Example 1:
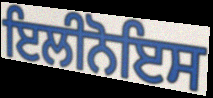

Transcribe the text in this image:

ਇਲੀਨੋਇਸ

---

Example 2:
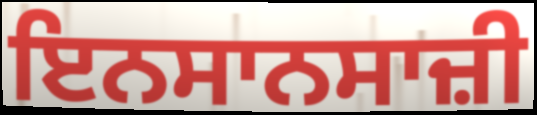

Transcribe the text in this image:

ਇਨਸਾਨਸਾਜ਼ੀ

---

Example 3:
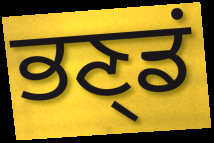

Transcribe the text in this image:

ਭਣ੍ਡਂ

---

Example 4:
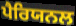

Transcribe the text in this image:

ਪੈਰਿਯਨਲ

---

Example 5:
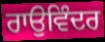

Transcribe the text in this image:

ਰਾਉਵਿੰਦਰ